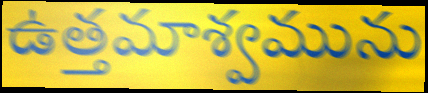
ఉత్తమాశ్వమును